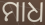
ମାଧ